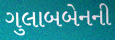
ગુલાબબેનની